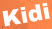
Kidi